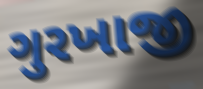
ગુરખાજી